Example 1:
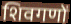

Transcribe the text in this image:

शिवगणों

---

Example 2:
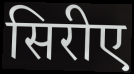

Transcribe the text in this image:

सिरीए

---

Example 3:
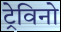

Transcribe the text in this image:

ट्रेविनो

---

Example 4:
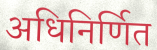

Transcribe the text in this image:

अधिनिर्णित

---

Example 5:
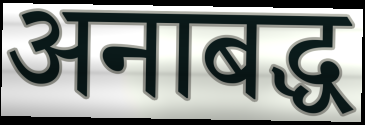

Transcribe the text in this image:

अनाबद्ध